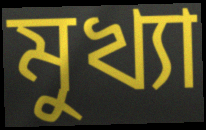
মুখ্যা